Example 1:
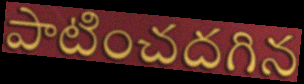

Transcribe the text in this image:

పాటించదగిన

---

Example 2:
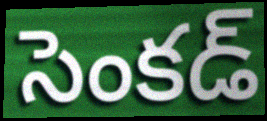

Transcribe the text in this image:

సెంకడ్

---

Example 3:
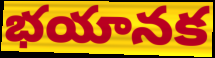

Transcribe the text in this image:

భయానక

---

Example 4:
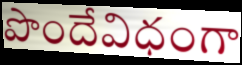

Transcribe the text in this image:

పొందేవిధంగా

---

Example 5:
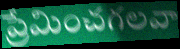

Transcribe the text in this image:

ప్రేమించగలవా